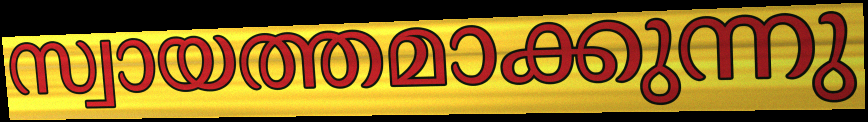
സ്വായത്തമാക്കുന്നു